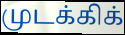
முடக்கிக்